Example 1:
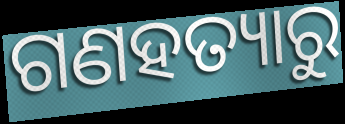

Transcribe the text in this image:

ଗଣହତ୍ୟାରୁ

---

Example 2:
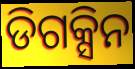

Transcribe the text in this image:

ଡିଗକ୍ସିନ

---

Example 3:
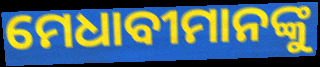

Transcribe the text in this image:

ମେଧାବୀମାନଙ୍କୁ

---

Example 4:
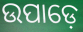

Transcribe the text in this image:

ଉପାଡ଼େ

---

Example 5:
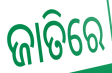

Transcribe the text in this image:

ଜାତିରେ